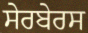
ਸੇਰਬੇਰਸ